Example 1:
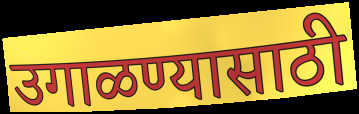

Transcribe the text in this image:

उगाळण्यासाठी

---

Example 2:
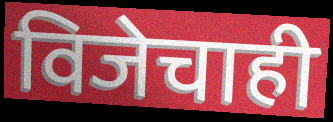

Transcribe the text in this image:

विजेचाही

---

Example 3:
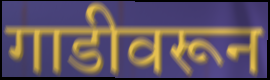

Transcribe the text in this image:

गाडीवरून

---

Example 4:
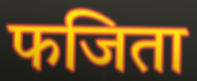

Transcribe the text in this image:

फजिता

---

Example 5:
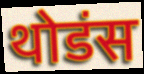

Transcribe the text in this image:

थोडंस